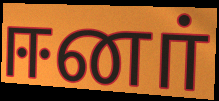
ஈனர்